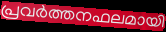
പ്രവർത്തനഫലമായി